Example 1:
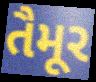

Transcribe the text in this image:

તૈમૂર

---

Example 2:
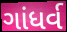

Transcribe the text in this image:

ગાંધર્વ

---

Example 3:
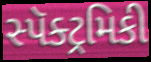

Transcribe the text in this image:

સ્પૅક્ટ્રમિકી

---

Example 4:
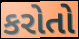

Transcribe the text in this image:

કરોતો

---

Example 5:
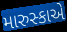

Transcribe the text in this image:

મારુસ્કાએ